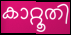
കാറ്റൂതി